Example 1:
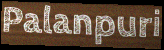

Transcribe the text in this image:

Palanpuri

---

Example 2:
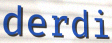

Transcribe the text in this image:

derdi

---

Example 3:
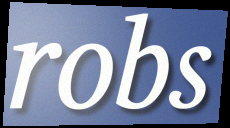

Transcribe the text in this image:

robs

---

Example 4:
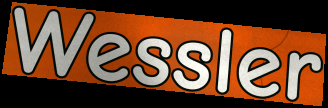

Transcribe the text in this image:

Wessler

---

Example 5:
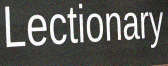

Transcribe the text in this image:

Lectionary